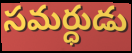
సమర్ధుడు